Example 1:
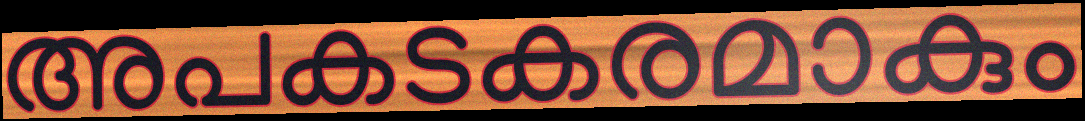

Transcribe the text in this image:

അപകടകരമാകും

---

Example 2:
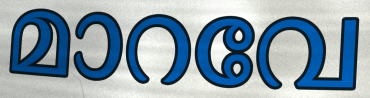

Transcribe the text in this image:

മാറവേ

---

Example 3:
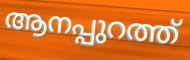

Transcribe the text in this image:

ആനപ്പുറത്ത്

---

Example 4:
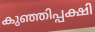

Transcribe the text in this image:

കുഞ്ഞിപ്പക്ഷി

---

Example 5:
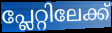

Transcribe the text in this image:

പ്ലേറ്റിലേക്ക്